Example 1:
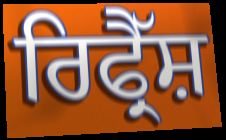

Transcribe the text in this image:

ਰਿਫ੍ਰੈੱਸ਼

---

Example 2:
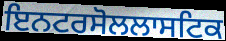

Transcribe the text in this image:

ਇਨਟਰਸੋਲਲਾਸਟਿਕ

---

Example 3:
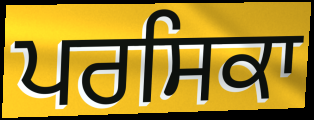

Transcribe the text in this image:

ਪਰਸਿਕਾ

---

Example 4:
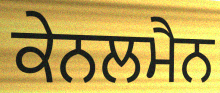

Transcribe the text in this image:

ਕੇਨਲਮੈਨ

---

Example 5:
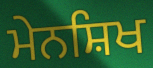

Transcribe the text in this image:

ਮੇਨਸ਼ਿਖ